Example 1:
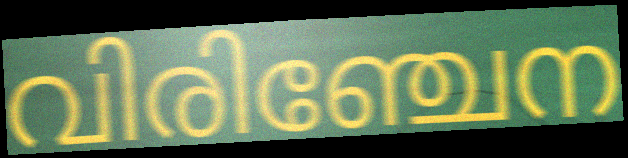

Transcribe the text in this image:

വിരിഞ്ചേന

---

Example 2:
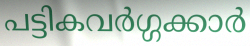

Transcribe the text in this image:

പട്ടികവർഗ്ഗക്കാർ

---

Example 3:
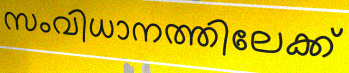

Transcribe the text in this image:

സംവിധാനത്തിലേക്ക്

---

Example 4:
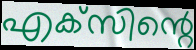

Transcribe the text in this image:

എക്‌സിന്റെ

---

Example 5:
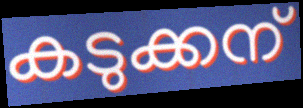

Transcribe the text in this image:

കടുക്കന്